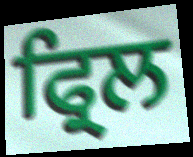
ਫ੍ਰਿਲ